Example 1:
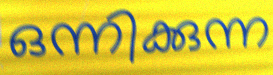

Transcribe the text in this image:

ഒന്നിക്കുന്ന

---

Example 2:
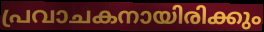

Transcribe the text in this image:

പ്രവാചകനായിരിക്കും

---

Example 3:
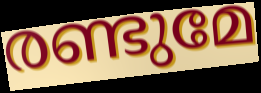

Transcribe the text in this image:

രണ്ടുമേ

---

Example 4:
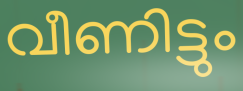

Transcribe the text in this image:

വീണിട്ടും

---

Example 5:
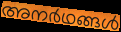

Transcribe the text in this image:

അനർഥങ്ങൾ